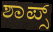
ಶಾಪ್ಸ್